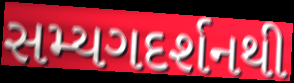
સમ્યગદર્શનથી